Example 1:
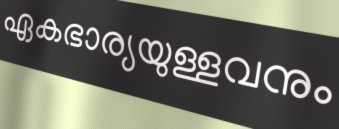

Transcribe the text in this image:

ഏകഭാര്യയുള്ളവനും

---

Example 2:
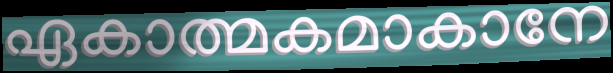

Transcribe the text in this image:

ഏകാത്മകമാകാനേ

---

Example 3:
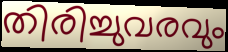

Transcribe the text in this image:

തിരിച്ചുവരവും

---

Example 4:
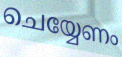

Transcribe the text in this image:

ചെയ്യേണം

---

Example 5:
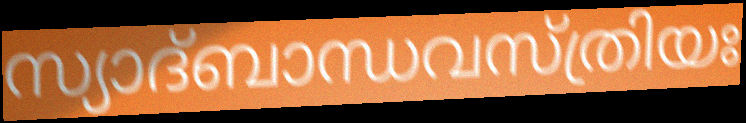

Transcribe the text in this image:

സ്യാദ്ബാന്ധവസ്ത്രിയഃ